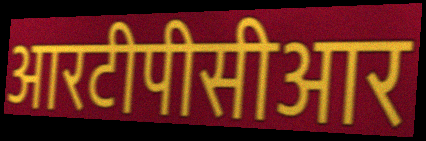
आरटीपीसीआर